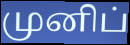
முனிப்